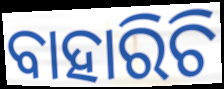
ବାହାରିଚି